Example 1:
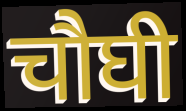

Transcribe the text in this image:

चौघी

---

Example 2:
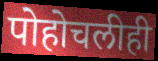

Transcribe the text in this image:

पोहोचलीही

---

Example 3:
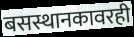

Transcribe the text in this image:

बसस्थानकावरही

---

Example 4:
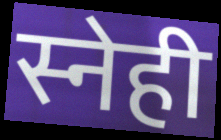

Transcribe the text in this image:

स्नेही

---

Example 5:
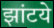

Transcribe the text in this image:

झांटये